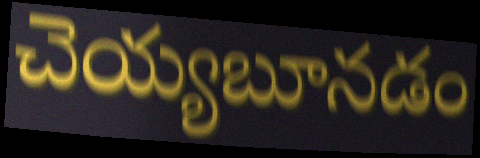
చెయ్యబూనడం